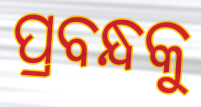
ପ୍ରବନ୍ଧକୁ